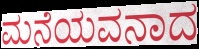
ಮನೆಯವನಾದ